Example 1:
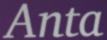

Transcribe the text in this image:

Anta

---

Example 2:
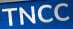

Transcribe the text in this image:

TNCC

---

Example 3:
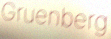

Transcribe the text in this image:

Gruenberg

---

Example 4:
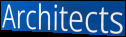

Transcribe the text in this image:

Architects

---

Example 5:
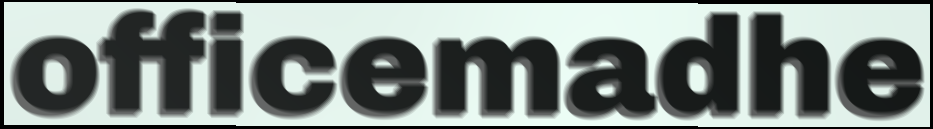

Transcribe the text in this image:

officemadhe